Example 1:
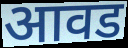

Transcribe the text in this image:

आवड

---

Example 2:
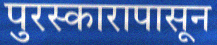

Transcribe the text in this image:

पुरस्कारापासून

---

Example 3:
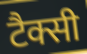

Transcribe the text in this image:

टैक्सी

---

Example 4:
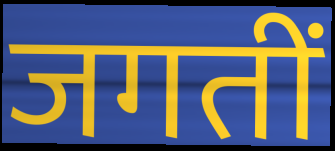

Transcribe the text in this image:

जगतीं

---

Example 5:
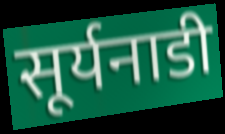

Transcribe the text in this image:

सूर्यनाडी